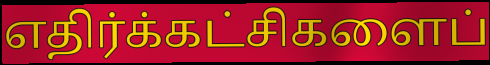
எதிர்க்கட்சிகளைப்